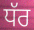
ਧੱਰ